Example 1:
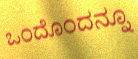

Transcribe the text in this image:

ಒಂದೊಂದನ್ನೂ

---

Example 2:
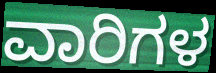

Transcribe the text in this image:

ವಾರಿಗಳ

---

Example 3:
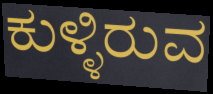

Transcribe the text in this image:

ಕುಳ್ಳಿರುವ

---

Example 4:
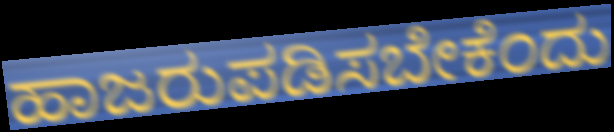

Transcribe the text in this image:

ಹಾಜರುಪಡಿಸಬೇಕೆಂದು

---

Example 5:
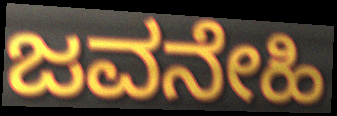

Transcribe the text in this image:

ಜವನೇಹಿ